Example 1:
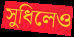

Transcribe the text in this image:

সুধিলেও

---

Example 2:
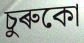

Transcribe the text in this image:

চুৰুকো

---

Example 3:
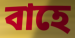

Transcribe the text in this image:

বাহে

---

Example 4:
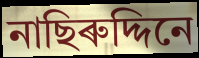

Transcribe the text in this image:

নাছিৰুদ্দিনে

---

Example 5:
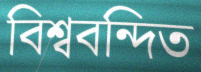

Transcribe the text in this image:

বিশ্ববন্দিত